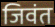
जिवंत